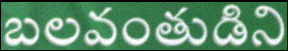
బలవంతుడిని